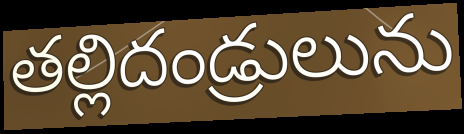
తల్లిదండ్రులును